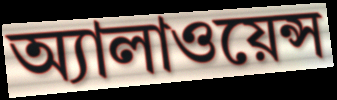
অ্যালাওয়েন্স